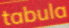
tabula